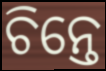
ଚିନ୍ତେ